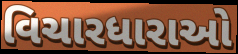
વિચારધારાઓ